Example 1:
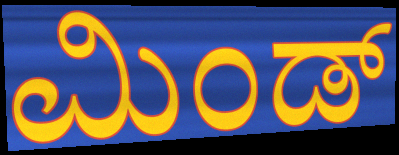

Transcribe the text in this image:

ಮಿಂಡ್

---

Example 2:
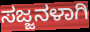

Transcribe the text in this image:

ಸಜ್ಜನಳಾಗಿ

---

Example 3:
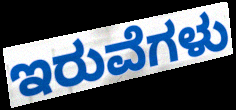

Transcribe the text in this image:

ಇರುವೆಗಳು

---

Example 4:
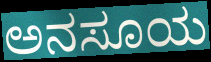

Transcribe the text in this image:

ಅನಸೂಯ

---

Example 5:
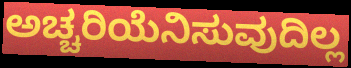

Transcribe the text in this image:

ಅಚ್ಚರಿಯೆನಿಸುವುದಿಲ್ಲ